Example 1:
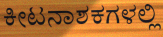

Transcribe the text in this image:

ಕೀಟನಾಶಕಗಳಲ್ಲಿ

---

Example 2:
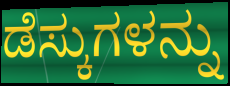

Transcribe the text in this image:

ಡೆಸ್ಕುಗಳನ್ನು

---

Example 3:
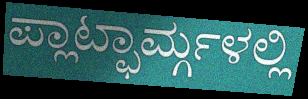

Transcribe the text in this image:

ಪ್ಲಾಟ್ಫಾರ್ಮ್ಗಳಲ್ಲಿ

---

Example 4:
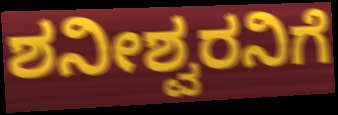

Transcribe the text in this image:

ಶನೀಶ್ವರನಿಗೆ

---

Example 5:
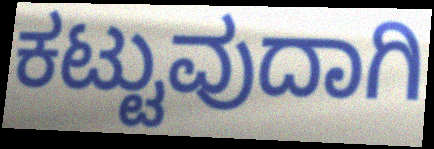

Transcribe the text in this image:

ಕಟ್ಟುವುದಾಗಿ